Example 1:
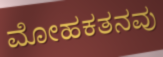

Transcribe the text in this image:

ಮೋಹಕತನವು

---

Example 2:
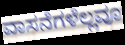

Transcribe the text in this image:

ವಾಸನೆಗಳೆಲ್ಲವೂ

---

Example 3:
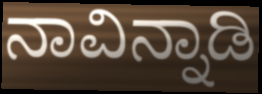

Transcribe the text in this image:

ನಾವಿನ್ನಾಡಿ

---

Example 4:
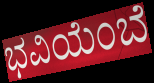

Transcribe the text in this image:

ಭವಿಯೆಂಬೆ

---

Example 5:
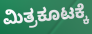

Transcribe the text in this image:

ಮಿತ್ರಕೂಟಕ್ಕೆ